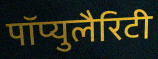
पॉप्युलैरिटी